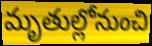
మృతుల్లోనుంచి